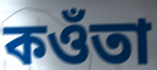
কওঁতা